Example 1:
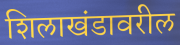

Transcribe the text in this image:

शिलाखंडावरील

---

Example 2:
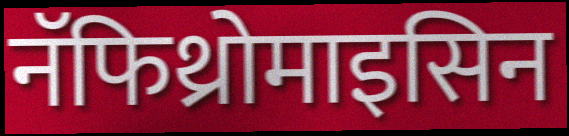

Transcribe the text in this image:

नॅफिथ्रोमाइसिन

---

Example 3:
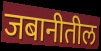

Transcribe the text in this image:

जबानीतील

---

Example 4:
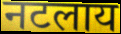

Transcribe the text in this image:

नटलाय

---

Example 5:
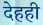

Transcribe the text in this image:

देहही